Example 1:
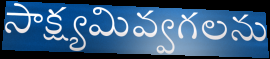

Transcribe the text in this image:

సాక్ష్యమివ్వగలను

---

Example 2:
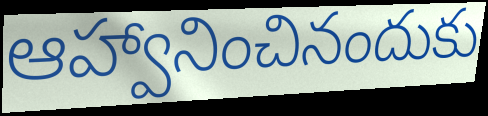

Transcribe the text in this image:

ఆహ్వానించినందుకు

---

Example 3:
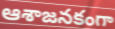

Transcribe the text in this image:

ఆశాజనకంగా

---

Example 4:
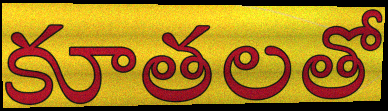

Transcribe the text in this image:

కూతలతో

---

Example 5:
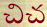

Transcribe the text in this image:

చిచ